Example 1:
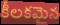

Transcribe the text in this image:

కీలకమైన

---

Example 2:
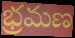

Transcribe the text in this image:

భ్రమణ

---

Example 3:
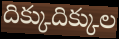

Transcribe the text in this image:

దిక్కుదిక్కుల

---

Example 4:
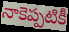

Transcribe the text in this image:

నాకెప్పటికీ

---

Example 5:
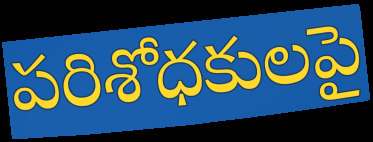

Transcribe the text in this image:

పరిశోధకులపై